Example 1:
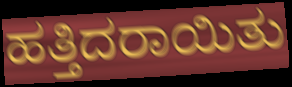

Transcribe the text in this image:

ಹತ್ತಿದರಾಯಿತು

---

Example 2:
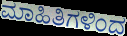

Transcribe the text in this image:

ಮಾಹಿತಿಗಳಿಂದ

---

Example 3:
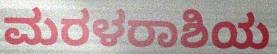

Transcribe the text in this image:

ಮರಳರಾಶಿಯ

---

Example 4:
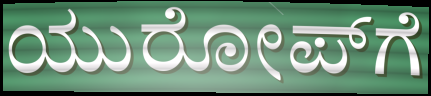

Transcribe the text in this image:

ಯುರೋಪ್‌ಗೆ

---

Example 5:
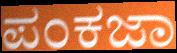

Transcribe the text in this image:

ಪಂಕಜಾ